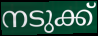
നടുക്ക്